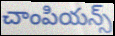
చాంపియన్స్